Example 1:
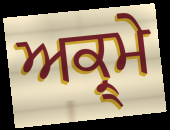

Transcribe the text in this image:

ਅਕ੍ਰ੍ਮੇ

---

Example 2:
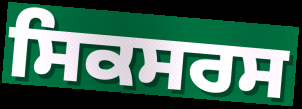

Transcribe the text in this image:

ਸਿਕਸਰਸ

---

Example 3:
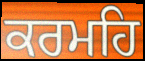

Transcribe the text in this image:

ਕਰਮਹਿ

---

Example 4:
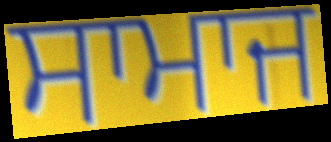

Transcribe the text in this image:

ਸਾਮਾਜ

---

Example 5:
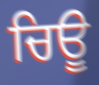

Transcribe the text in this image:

ਚਿਊ